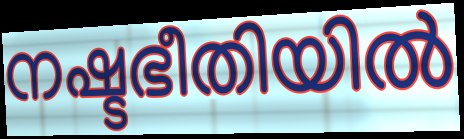
നഷ്ടഭീതിയിൽ